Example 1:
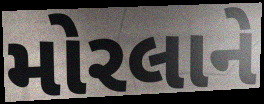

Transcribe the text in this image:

મોરલાને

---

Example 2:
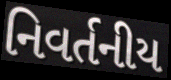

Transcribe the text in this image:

નિવર્તનીય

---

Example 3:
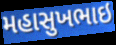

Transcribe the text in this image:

મહાસુખભાઇ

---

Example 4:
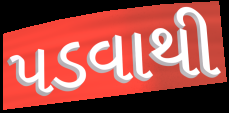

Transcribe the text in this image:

પડવાથી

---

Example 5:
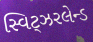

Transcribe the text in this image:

સ્વિટ્ઝરલેન્ડ